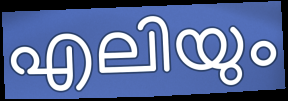
എലിയും